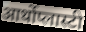
आर्थोप्लास्टी